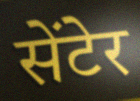
सेंटेर